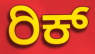
ರಿಕ್